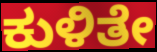
ಕುಳಿತೇ